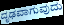
ದೃಢವಾಗುವುದು